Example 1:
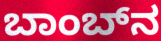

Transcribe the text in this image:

ಬಾಂಬ್‍ನ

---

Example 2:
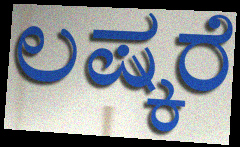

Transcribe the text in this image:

ಲಷ್ಕರೆ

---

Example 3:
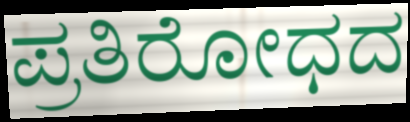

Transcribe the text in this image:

ಪ್ರತಿರೋಧದ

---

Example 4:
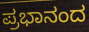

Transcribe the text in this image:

ಪ್ರಭಾನಂದ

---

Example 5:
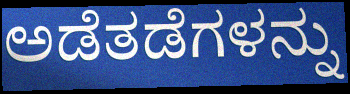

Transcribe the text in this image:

ಅಡೆತಡೆಗಳನ್ನು